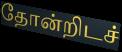
தோன்றிடச்